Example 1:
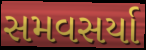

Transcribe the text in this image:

સમવસર્યા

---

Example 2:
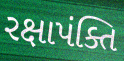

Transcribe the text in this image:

રક્ષાપંક્તિ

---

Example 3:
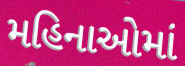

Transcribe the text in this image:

મહિનાઓમાં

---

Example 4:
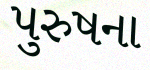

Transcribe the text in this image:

પુરુષના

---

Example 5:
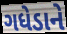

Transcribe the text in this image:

ગધેડાને